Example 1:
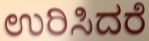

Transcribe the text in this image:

ಉರಿಸಿದರೆ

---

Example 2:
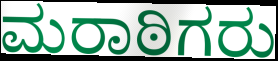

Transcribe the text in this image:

ಮರಾಠಿಗರು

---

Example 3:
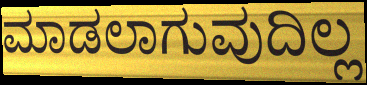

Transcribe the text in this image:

ಮಾಡಲಾಗುವುದಿಲ್ಲ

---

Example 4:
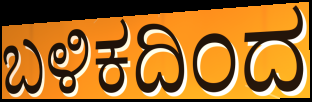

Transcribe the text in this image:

ಬಳಿಕದಿಂದ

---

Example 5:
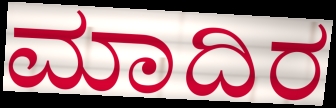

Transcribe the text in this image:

ಮಾದಿರ